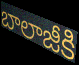
బాలాజీకి